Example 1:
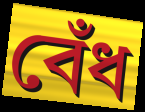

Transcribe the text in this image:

বেঁধ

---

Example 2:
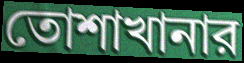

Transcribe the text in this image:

তোশাখানার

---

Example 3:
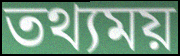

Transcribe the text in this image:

তথ্যময়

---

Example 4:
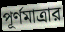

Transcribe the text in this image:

পূর্ণমাত্রার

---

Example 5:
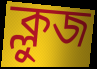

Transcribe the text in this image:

ক্লুজ